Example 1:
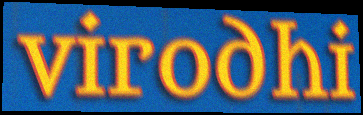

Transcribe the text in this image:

virodhi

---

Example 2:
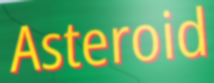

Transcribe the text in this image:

Asteroid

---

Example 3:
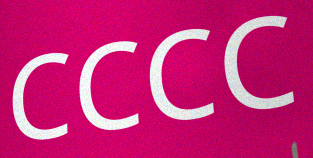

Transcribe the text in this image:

CCCC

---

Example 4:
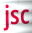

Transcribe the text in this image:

jsc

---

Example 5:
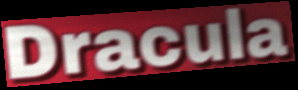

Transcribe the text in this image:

Dracula